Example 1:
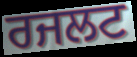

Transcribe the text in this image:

ਰਜਲਟ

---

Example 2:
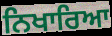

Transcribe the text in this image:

ਨਿਖਾਰਿਆ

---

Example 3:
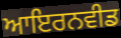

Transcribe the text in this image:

ਆਇਰਨਵੀਡ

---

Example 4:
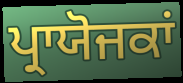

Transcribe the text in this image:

ਪ੍ਰਾਯੋਜਕਾਂ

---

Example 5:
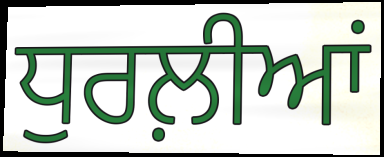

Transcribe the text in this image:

ਧੁਰਲ਼ੀਆਂ